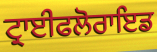
ਟ੍ਰਾਈਫਲੋਰਾਇਡ